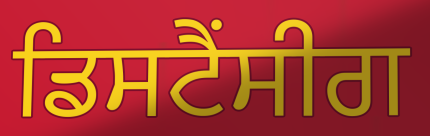
ਡਿਸਟੈਂਸੀਗ